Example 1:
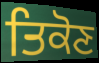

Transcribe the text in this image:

ਤਿਕੋਣ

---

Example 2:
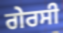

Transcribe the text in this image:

ਗੇਰਸੀ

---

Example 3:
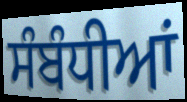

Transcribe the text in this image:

ਸੰਬੰਧੀਆਂ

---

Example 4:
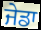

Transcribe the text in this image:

ਜੇਡਾ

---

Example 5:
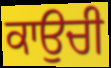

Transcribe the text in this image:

ਕਾਉਚੀ